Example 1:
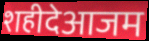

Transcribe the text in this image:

शहीदेआजम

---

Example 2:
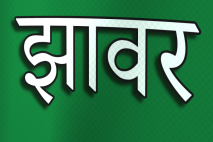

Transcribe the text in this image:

झावर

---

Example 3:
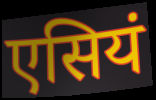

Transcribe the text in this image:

एसियं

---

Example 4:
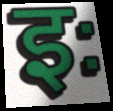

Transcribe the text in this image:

इः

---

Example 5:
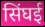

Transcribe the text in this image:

सिंघई